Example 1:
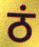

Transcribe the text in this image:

ठं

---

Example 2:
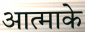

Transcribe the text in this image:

आत्माके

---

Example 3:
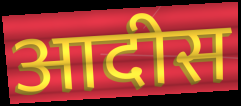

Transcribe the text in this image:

आदीस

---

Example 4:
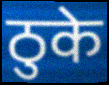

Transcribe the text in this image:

ठुके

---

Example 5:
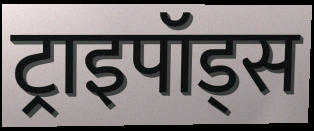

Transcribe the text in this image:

ट्राइपॉड्स